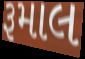
રૂમાલ